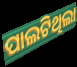
ପାଲଟିଥିଲା